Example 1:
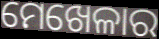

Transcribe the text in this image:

ମେଖେଳାର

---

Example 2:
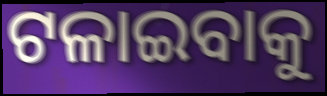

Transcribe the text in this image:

ଟଳାଇବାକୁ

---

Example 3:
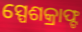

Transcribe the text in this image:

ସ୍ପେଶକ୍ରାଫ୍ଟ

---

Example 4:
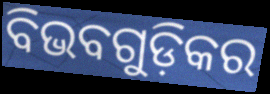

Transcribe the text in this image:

ବିଭବଗୁଡ଼ିକର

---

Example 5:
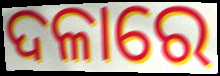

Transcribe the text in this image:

ଦଳାରେ